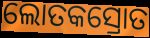
ଲୋତକସ୍ରୋତ